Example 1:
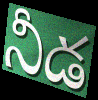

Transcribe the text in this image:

నీడ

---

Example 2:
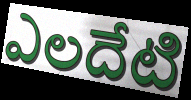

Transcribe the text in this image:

ఎలదేటి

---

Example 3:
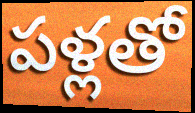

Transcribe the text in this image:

పళ్లతో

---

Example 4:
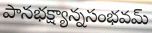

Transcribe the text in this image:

పానభక్ష్యాన్నసంభవమ్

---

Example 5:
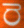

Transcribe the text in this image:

రె